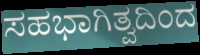
ಸಹಭಾಗಿತ್ವದಿಂದ